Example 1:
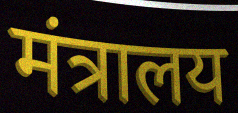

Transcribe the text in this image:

मंत्रालय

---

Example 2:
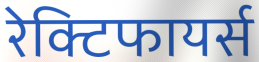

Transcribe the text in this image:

रेक्टिफायर्स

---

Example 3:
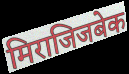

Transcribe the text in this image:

मिराजिजबेक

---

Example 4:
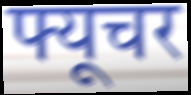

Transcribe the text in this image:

फ्यूचर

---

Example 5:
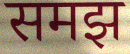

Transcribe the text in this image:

समझ